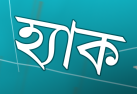
হ্যাক